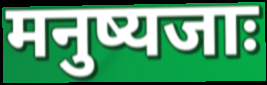
मनुष्यजाः